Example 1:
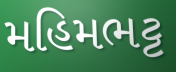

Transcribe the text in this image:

મહિમભટ્ટ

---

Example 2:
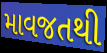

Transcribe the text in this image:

માવજતથી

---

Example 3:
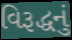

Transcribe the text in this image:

વિરૂદ્ધનું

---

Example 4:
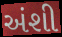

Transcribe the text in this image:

અંશી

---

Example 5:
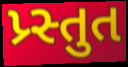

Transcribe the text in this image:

પ્ર્સ્તુત